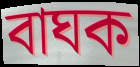
বাঘক